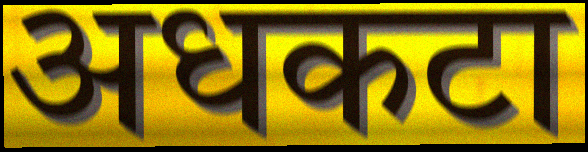
अधकटा